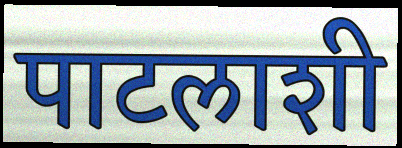
पाटलाशी